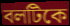
বলটিকে